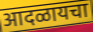
आदळायचा